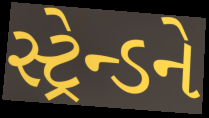
સ્ટ્રેન્ડને